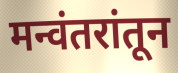
मन्वंतरांतून